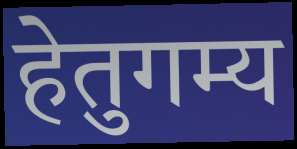
हेतुगम्य